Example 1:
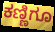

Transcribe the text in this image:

ಕಣ್ಣಿಗೂ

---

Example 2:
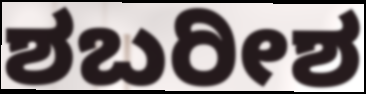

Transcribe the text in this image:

ಶಬರೀಶ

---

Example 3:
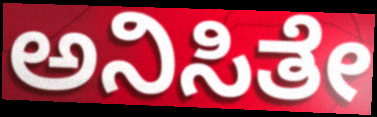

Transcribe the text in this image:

ಅನಿಸಿತೇ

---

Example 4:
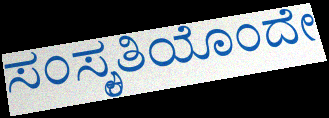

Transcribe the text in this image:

ಸಂಸ್ಕೃತಿಯೊಂದೇ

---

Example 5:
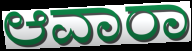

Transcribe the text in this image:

ಆವಾರಾ